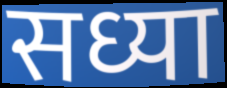
सध्या